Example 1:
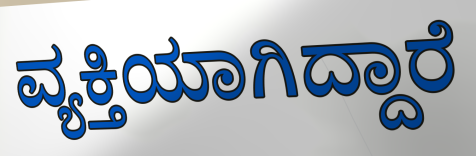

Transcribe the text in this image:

ವ್ಯಕ್ತಿಯಾಗಿದ್ದಾರೆ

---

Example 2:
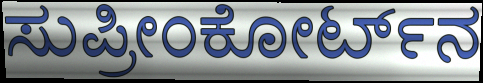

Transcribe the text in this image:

ಸುಪ್ರೀಂಕೋರ್ಟ್‌ನ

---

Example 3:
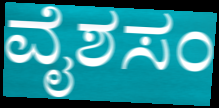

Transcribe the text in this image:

ವೈಶಸಂ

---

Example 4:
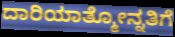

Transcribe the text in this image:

ದಾರಿಯಾತ್ಮೋನ್ನತಿಗೆ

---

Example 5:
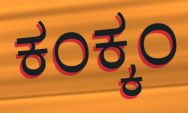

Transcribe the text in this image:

ಕಂಕ್ಕಂ